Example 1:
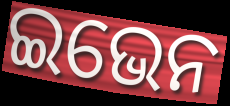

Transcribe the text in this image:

ଇଭେନ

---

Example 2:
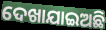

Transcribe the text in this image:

ଦେଖାଯାଇଅଛି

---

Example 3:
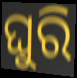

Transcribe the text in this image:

ଘୁରି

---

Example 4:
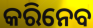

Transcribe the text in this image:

କରିନେବ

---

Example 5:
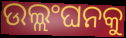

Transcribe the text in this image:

ଉଲ୍ଲଂଘନକୁ